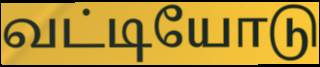
வட்டியோடு